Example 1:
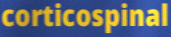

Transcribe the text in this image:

corticospinal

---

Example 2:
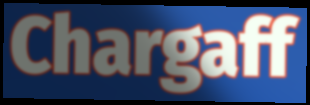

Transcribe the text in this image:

Chargaff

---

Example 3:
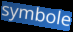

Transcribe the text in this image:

symbole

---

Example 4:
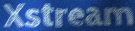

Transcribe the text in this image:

Xstream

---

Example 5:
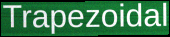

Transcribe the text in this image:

Trapezoidal